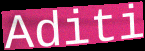
Aditi